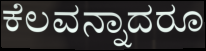
ಕೆಲವನ್ನಾದರೂ